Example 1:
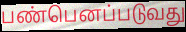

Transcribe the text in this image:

பண்பெனப்படுவது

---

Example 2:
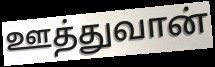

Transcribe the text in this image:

ஊத்துவான்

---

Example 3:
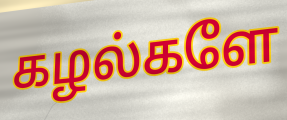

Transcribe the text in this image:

கழல்களே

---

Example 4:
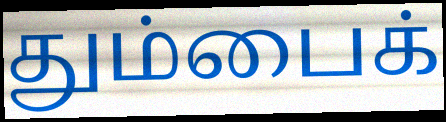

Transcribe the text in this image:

தும்பைக்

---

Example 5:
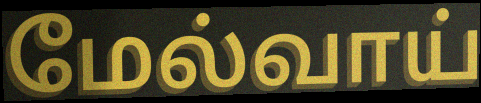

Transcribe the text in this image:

மேல்வாய்